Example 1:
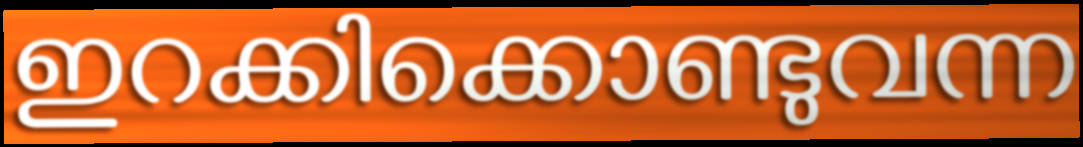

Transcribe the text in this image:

ഇറക്കിക്കൊണ്ടുവന്ന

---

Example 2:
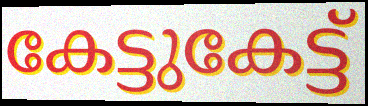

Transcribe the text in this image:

കേട്ടുകേട്ട്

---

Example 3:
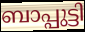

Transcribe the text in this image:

ബാപ്പുട്ടി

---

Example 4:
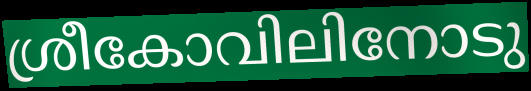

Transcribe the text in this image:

ശ്രീകോവിലിനോടു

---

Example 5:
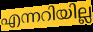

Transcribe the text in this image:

എന്നറിയില്ല